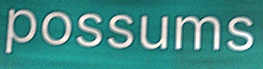
possums